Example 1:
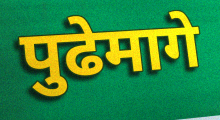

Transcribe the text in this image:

पुढेमागे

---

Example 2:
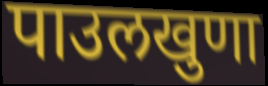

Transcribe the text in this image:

पाउलखुणा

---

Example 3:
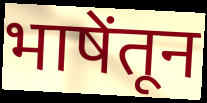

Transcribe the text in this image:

भाषेंतून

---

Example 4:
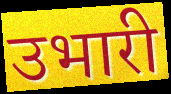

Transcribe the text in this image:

उभारी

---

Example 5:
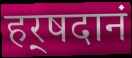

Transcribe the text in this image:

हर्षदानं